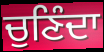
ਚੁਣਿੰਦਾ